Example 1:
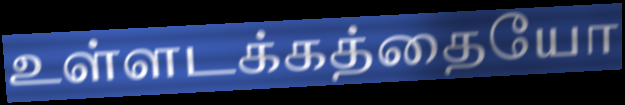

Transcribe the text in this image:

உள்ளடக்கத்தையோ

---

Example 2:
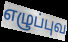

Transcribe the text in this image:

எழுப்புவ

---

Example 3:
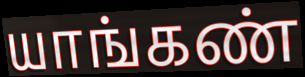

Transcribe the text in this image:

யாங்கண்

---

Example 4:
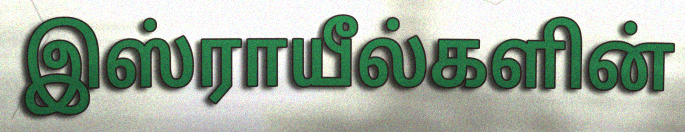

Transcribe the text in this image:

இஸ்ராயீல்களின்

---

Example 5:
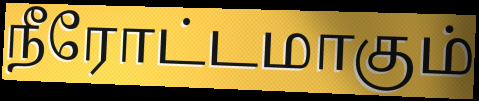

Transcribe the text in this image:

நீரோட்டமாகும்